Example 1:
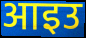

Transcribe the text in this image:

आइउ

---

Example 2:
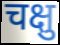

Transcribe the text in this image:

चक्षु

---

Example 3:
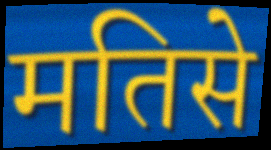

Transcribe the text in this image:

मतिसे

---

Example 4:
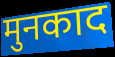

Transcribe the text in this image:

मुनकाद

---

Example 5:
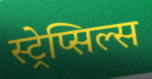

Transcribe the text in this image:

स्ट्रेप्सिल्स